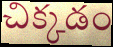
చిక్కడం